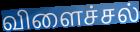
விளைச்சல்